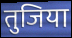
तुजिया